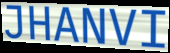
JHANVI